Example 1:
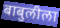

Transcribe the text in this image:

बाबुलीला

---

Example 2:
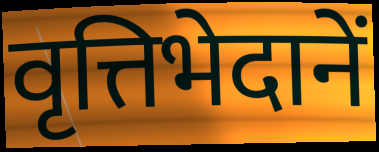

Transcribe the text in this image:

वृत्तिभेदानें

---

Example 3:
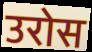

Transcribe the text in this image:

उरोस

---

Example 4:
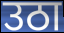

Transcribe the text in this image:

उठा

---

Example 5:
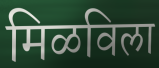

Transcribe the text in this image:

मिळविला